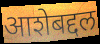
आशेबद्दल